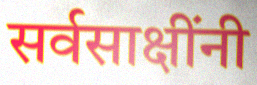
सर्वसाक्षींनी